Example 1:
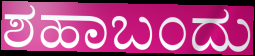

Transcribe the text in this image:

ಶಹಾಬಂದು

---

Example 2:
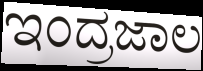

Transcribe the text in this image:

ಇಂದ್ರಜಾಲ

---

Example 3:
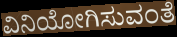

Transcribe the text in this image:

ವಿನಿಯೋಗಿಸುವಂತೆ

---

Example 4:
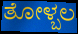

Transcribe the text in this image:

ತೋಳ್ಬಲ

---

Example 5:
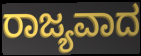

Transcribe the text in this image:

ರಾಜ್ಯವಾದ